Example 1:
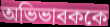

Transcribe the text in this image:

অভিভাবককে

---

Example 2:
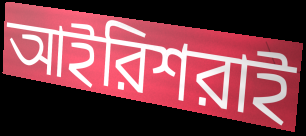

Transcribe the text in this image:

আইরিশরাই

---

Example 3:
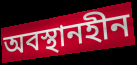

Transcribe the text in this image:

অবস্থানহীন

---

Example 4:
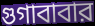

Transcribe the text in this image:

গুগাবাবার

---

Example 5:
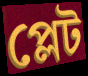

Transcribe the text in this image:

প্লেট